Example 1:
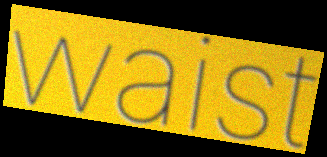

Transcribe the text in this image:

waist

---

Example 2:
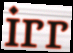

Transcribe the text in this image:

irr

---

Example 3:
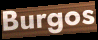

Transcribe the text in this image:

Burgos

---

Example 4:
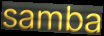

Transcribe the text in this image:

samba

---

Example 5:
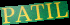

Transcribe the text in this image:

PATIL